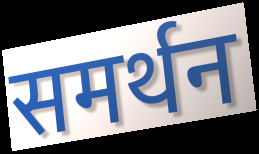
समर्थन